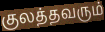
குலத்தவரும்